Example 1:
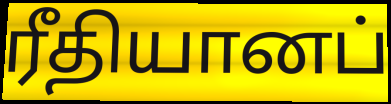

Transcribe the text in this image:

ரீதியானப்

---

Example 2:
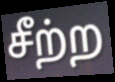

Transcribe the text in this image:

சீற்ற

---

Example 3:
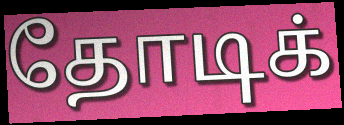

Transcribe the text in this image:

தோடிக்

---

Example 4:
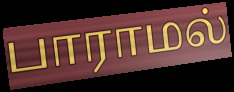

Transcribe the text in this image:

பாராமல்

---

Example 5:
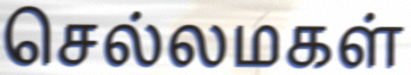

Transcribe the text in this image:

செல்லமகள்